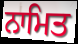
ਨਾਮਿਤ